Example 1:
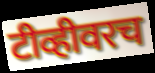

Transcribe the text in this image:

टीव्हीवरच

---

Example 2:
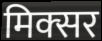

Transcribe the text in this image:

मिक्‍सर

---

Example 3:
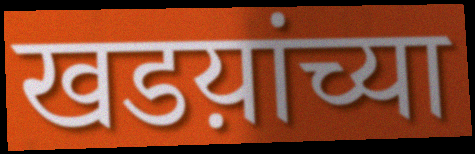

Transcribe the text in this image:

खडय़ांच्या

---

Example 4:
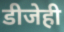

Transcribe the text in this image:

डीजेही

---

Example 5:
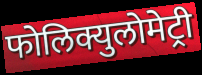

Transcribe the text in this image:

फोलिक्युलोमेट्री